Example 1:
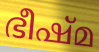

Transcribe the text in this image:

ഭീഷ്മ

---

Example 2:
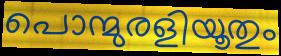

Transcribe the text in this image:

പൊന്മുരളിയൂതും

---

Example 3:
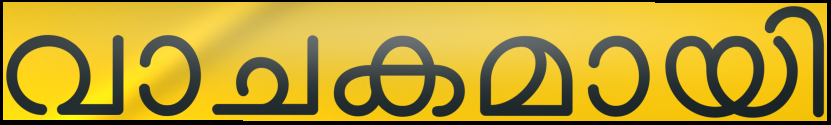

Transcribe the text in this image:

വാചകമായി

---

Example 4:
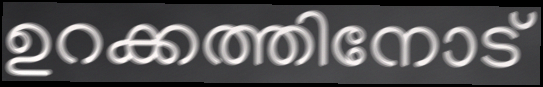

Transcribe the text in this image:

ഉറക്കത്തിനോട്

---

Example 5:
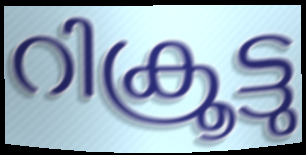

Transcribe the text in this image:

റിക്രൂട്ടു